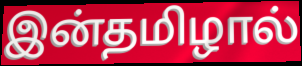
இன்தமிழால்